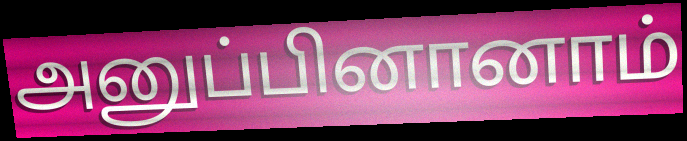
அனுப்பினானாம்